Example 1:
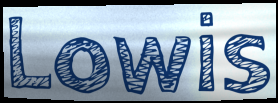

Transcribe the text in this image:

Lowis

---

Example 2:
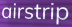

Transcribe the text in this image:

airstrip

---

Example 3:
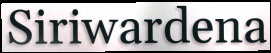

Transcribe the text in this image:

Siriwardena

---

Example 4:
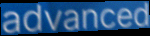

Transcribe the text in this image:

advanced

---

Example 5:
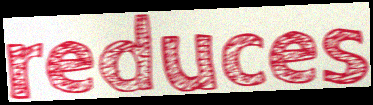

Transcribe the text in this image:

reduces